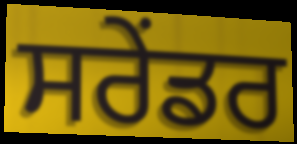
ਸਰੇਂਡਰ